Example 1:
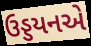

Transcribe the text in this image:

ઉડ્ડયનએ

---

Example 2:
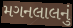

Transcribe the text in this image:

મગનલાલનું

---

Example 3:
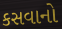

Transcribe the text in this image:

કસવાનો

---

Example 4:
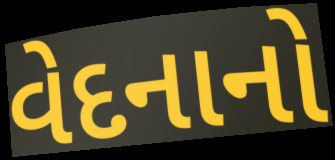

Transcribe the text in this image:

વેદનાનો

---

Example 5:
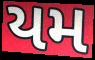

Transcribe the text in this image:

યમ